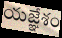
యజ్ఞేశం